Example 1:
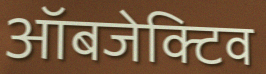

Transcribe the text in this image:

ऑबजेक्टिव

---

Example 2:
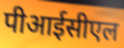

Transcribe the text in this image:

पीआईसीएल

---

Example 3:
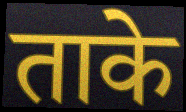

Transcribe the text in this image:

ताके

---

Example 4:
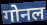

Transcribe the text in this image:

गोनल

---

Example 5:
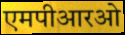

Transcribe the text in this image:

एमपीआरओ